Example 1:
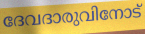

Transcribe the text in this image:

ദേവദാരുവിനോട്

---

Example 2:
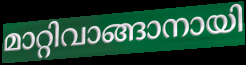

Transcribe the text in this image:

മാറ്റിവാങ്ങാനായി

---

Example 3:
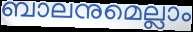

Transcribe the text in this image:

ബാലനുമെല്ലാം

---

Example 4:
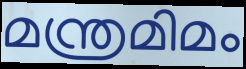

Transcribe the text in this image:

മന്ത്രമിമം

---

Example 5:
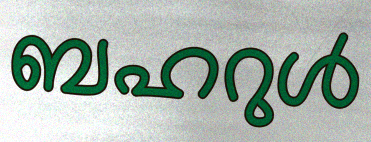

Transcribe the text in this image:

ബഹറുൾ